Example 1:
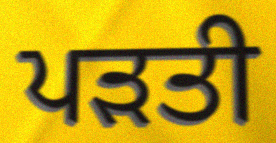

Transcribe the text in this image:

ਪੜਤੀ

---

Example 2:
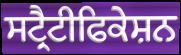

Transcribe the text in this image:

ਸਟ੍ਰੈਟੀਫਿਕੇਸ਼ਨ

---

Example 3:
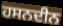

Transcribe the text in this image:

ਹਸਨਦੀਨ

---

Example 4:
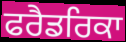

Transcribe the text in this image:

ਫਰੈਡਰਿਕਾ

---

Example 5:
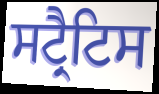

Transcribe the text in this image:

ਸਟ੍ਰੈਟਿਸ